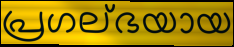
പ്രഗല്ഭയായ